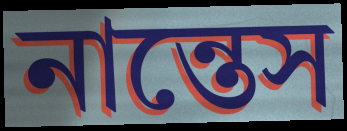
নান্তেস